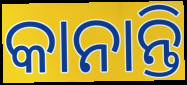
କାନାନ୍ତି